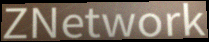
ZNetwork